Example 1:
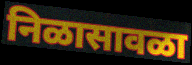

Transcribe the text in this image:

निळासावळा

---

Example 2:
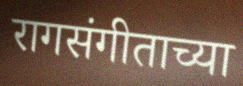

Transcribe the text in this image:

रागसंगीताच्या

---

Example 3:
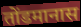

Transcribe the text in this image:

तोंडमानास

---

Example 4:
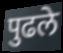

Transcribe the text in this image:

पुढले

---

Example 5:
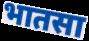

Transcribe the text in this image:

भातसा